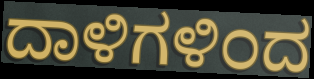
ದಾಳಿಗಳಿಂದ